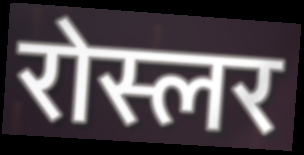
रोस्लर